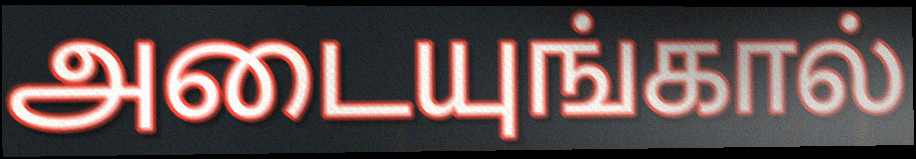
அடையுங்கால்